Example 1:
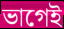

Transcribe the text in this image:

ভাগেই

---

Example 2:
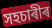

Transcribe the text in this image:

সহচাৰীৰ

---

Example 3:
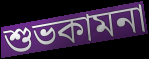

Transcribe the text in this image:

শুভকামনা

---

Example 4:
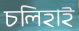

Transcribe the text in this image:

চলিহাই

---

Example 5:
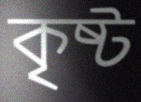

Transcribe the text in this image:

কৃষ্ট